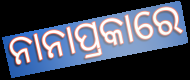
ନାନାପ୍ରକାରେ